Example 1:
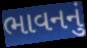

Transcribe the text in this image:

ભાવનનું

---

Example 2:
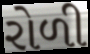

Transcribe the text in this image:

રોળી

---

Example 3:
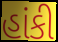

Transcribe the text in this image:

હાંકી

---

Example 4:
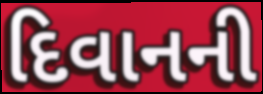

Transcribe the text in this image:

દિવાનની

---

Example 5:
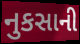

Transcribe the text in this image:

નુકસાની